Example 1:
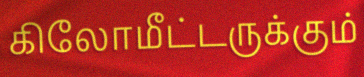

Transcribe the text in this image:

கிலோமீட்டருக்கும்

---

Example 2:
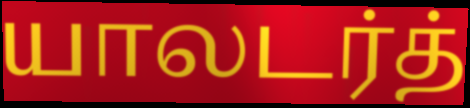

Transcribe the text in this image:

யாலடர்த்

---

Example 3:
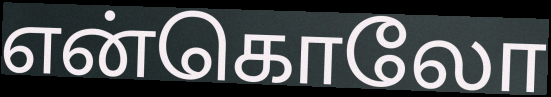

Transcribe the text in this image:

என்கொலோ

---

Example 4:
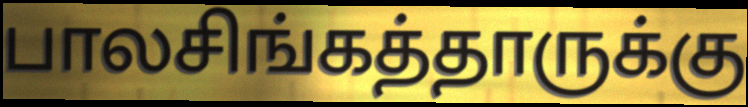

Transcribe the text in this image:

பாலசிங்கத்தாருக்கு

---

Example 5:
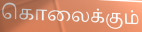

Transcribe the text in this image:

கொலைக்கும்